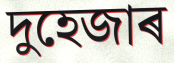
দুহেজাৰ